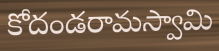
కోదండరామస్వామి